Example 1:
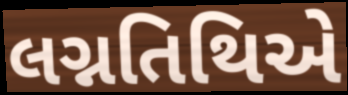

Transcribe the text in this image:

લગ્નતિથિએ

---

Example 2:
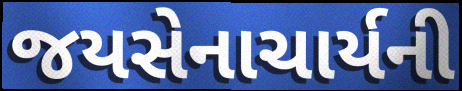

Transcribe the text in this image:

જયસેનાચાર્યની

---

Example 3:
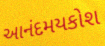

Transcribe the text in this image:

આનંદમયકોશ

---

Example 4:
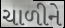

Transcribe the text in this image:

ચાળીને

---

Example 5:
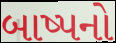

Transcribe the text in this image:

બાષ્પનો